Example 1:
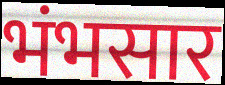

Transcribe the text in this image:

भंभसार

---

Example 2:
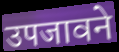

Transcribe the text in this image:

उपजावने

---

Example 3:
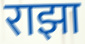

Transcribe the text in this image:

राझा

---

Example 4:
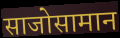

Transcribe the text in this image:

साजोसामान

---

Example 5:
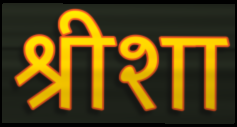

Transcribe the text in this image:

श्रीशा